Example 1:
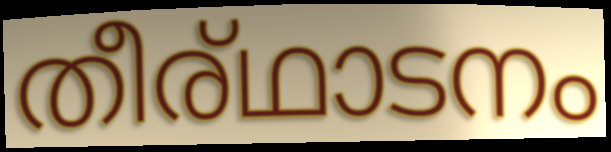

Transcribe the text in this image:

തീര്ഥാടനം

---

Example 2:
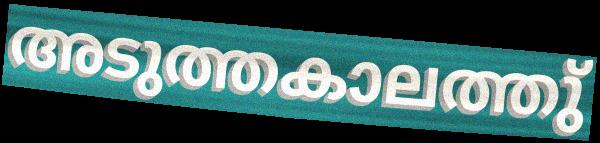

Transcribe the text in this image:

അടുത്തകാലത്തു്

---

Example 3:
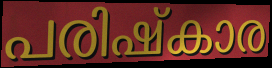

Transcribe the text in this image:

പരിഷ്‌കാര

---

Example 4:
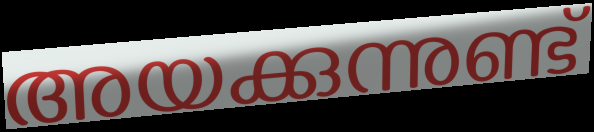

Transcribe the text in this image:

അയക്കുന്നുണ്ട്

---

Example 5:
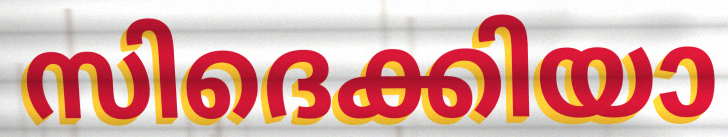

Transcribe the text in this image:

സിദെക്കിയാ